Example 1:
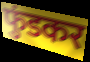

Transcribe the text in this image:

फुंडकर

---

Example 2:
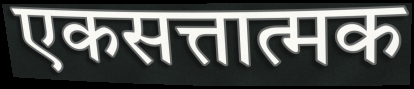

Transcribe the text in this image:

एकसत्तात्मक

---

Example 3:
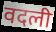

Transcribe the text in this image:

वदली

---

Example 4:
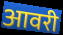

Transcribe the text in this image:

आवरी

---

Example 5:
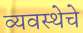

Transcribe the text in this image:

व्यवस्थेचे